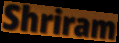
Shriram